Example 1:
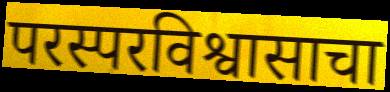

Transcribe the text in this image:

परस्परविश्वासाचा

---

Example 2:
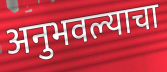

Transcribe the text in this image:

अनुभवल्याचा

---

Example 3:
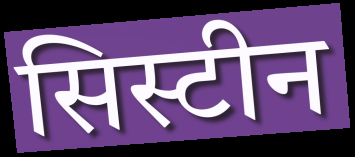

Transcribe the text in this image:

सिस्टीन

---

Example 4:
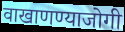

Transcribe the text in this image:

वाखाणण्याजोगी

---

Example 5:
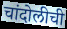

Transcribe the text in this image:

चांदोलीची